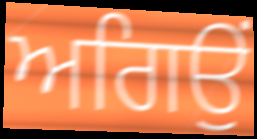
ਅਗਿਉਂ